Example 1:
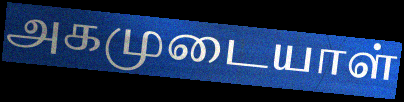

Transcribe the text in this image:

அகமுடையாள்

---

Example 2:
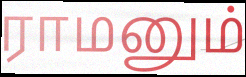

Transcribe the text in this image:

ராமனும்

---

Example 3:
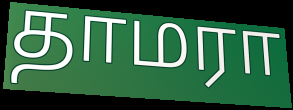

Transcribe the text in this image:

தாமரா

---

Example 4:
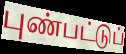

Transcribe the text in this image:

புண்பட்டுப்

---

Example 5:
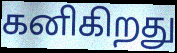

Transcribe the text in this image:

கனிகிறது